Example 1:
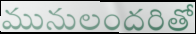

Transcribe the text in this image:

మునులందరితో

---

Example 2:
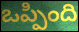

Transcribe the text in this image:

ఒప్పింది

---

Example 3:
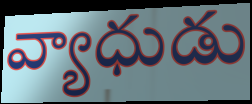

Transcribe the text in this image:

వ్యాధుడు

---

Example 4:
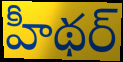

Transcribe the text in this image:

హీథర్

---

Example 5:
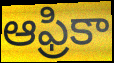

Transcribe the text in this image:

ఆఫ్రికా